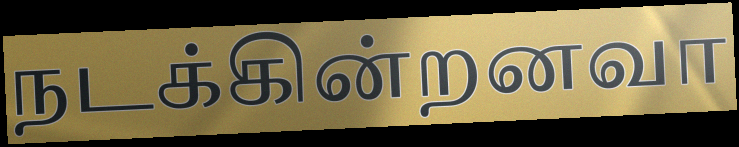
நடக்கின்றனவா